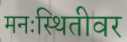
मनःस्थितीवर